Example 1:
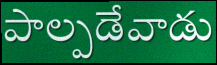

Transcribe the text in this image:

పాల్పడేవాడు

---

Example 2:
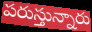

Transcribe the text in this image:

పరుస్తున్నారు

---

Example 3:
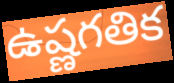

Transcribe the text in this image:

ఉష్ణగతిక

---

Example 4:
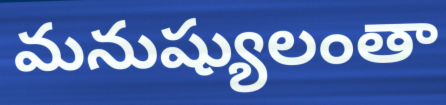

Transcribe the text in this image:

మనుష్యులంతా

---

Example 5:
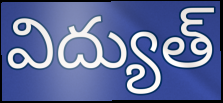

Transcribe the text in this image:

విద్యుత్